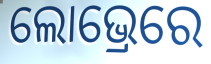
ଲୋଭ୍ରେରେ